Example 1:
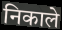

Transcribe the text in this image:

निकाले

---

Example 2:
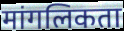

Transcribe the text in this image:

मांगलिकता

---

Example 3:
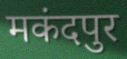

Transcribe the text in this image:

मकंदपुर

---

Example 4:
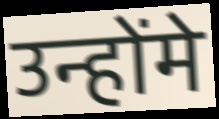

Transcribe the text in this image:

उन्होंमे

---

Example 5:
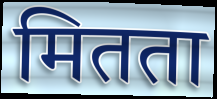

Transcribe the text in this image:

मितता